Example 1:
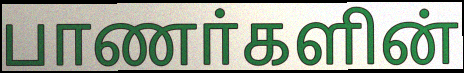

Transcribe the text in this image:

பாணர்களின்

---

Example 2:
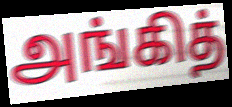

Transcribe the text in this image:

அங்கித்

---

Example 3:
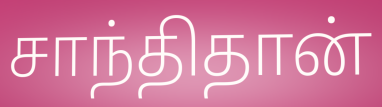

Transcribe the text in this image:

சாந்திதான்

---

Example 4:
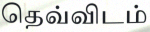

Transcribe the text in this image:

தெவ்விடம்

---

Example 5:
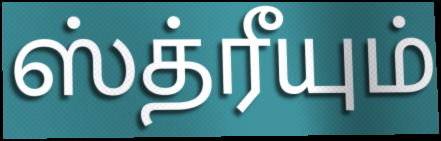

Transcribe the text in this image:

ஸ்த்ரீயும்